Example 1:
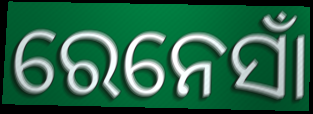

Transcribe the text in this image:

ରେନେସାଁ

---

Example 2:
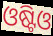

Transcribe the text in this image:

ଓଷ୍ଟିଓ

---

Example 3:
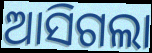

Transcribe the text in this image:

ଆସିଗଲା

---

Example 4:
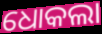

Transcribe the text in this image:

ଧୋକଲା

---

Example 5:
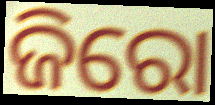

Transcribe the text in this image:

ଜିରୋ